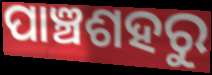
ପାଞ୍ଚଶହରୁ